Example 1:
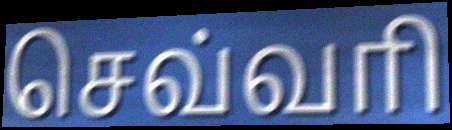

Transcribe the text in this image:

செவ்வரி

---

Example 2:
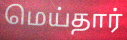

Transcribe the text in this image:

மெய்தார்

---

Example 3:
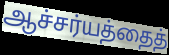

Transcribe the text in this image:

ஆச்சர்யத்தைத்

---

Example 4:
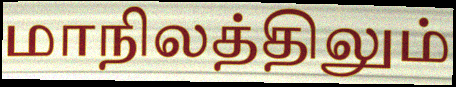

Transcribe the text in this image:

மாநிலத்திலும்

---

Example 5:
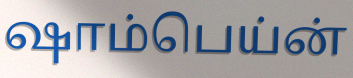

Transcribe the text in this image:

ஷாம்பெய்ன்